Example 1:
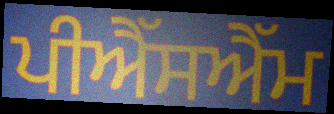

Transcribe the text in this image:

ਪੀਐੱਸਐੱਮ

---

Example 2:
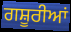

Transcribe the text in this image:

ਗਸ਼ੂਰੀਆਂ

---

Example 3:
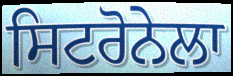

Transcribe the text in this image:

ਸਿਟਰੋਨੇਲਾ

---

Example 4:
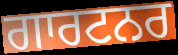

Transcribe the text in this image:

ਗਾਰਟਨਰ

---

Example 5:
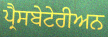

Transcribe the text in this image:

ਪ੍ਰੈਸਬੇਟੇਰੀਅਨ